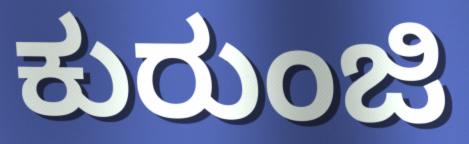
ಕುರುಂಜಿ